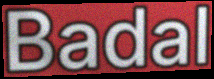
Badal